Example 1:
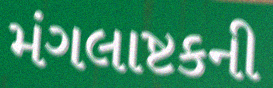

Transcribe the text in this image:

મંગલાષ્ટકની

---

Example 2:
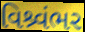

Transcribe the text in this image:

વિશ્ર્વંભર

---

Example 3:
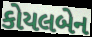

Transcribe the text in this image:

કોયલબેન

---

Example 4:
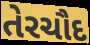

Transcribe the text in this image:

તેરચૌદ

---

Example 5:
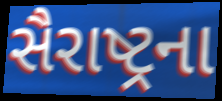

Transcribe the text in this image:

સૈરાષ્ટ્રના